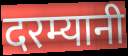
दरम्यानी